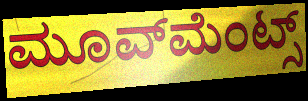
ಮೂವ್‌ಮೆಂಟ್ಸ್